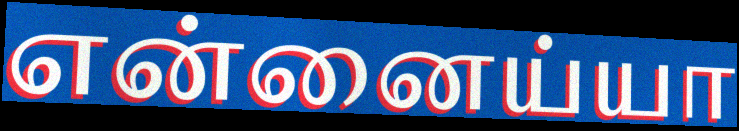
என்னைய்யா